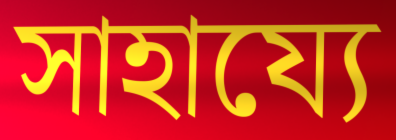
সাহায্যে